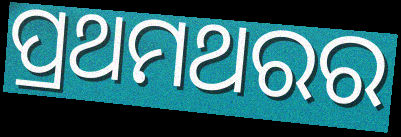
ପ୍ରଥମଥରର